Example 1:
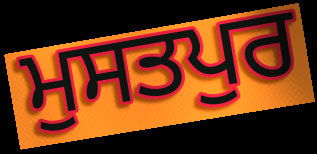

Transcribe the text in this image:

ਮੁਸਤਪੁਰ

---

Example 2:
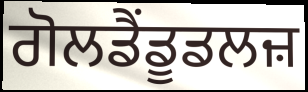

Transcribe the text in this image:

ਗੋਲਡੈਂਡੂਡਲਜ਼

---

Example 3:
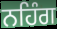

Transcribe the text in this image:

ਨਹਿੰਗ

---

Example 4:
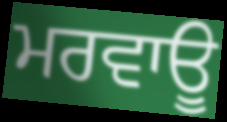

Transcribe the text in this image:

ਮਰਵਾਊ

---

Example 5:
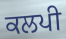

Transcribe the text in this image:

ਕਲਪੀ